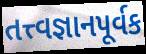
તત્ત્વજ્ઞાનપૂર્વક